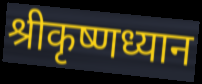
श्रीकृष्णध्यान